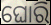
ଘୋରି